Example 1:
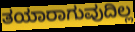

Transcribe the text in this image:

ತಯಾರಾಗುವುದಿಲ್ಲ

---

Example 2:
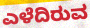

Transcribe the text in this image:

ಎಳೆದಿರುವ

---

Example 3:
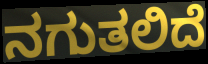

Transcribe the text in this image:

ನಗುತಲಿದೆ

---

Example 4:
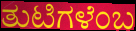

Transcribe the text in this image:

ತುಟಿಗಳೆಂಬ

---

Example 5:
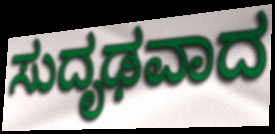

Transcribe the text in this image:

ಸುದೃಢವಾದ